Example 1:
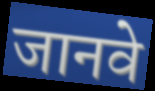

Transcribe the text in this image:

जानवे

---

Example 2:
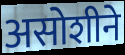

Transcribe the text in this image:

असोशीने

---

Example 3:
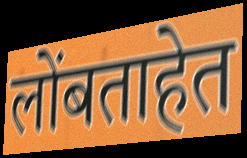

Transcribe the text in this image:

लोंबताहेत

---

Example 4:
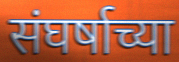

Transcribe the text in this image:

संघर्षाच्या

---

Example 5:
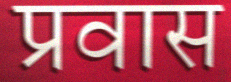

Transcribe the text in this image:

प्रवास